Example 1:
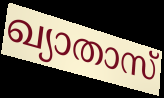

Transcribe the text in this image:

ഖ്യാതാസ്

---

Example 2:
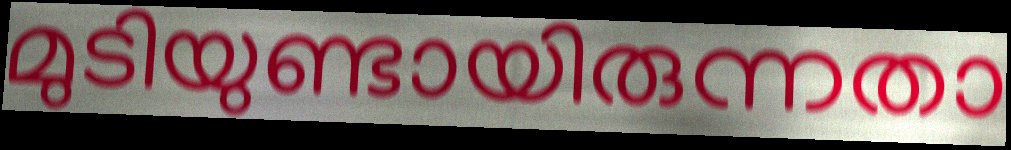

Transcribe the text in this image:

മുടിയുണ്ടായിരുന്നതാ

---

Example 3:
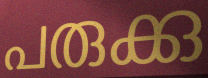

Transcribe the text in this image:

പരുക്കു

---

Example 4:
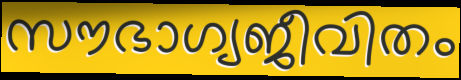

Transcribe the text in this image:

സൗഭാഗ്യജീവിതം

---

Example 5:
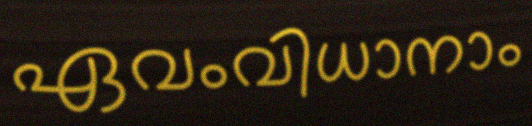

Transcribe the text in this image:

ഏവംവിധാനാം